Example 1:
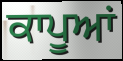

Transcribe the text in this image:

ਕਾਪੂਆਂ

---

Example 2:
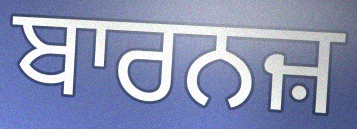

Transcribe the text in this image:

ਬਾਰਨਜ਼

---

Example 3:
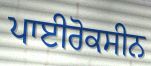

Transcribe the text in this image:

ਪਾਈਰੋਕਸੀਨ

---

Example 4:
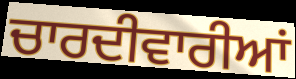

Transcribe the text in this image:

ਚਾਰਦੀਵਾਰੀਆਂ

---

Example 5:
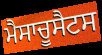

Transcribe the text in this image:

ਮੈਸਾਚੂਸੈਟਸ